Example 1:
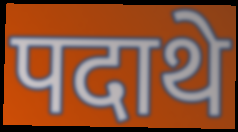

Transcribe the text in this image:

पदाथे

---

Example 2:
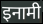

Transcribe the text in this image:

इनामी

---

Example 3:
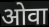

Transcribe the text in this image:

ओवा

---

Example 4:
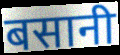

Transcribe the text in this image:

बसानी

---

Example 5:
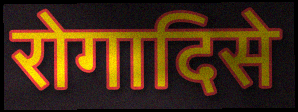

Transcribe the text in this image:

रोगादिसे